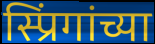
स्प्रिंगांच्या